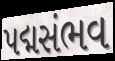
પદ્મસંભવ